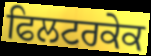
ਫਿਲਟਰਕੇਕ